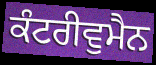
ਕੰਟਰੀਵੁਮੈਨ